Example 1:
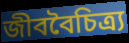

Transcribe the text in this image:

জীববৈচিত্র্য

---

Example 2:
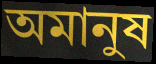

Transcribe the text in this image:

অমানুষ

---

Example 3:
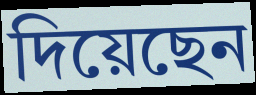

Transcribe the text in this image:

দিয়েছেন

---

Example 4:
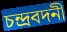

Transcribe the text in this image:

চন্দ্রবদনী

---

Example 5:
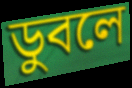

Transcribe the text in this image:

ডুবলে